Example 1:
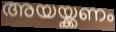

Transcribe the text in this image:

അയയ്ക്കണം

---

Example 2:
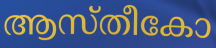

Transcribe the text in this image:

ആസ്തീകോ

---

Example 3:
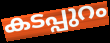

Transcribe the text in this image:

കടപ്പുറം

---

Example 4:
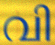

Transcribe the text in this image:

വി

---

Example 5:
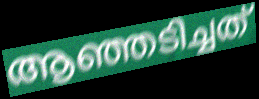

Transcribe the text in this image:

ആഞ്ഞടിച്ചത്